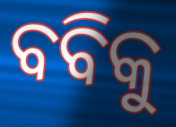
ବବିକୁ